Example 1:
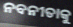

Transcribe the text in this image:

ନବନୀତାକୁ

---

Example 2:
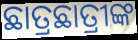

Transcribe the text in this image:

ଛାତ୍ରଛାତ୍ରୀଙ୍କ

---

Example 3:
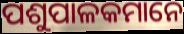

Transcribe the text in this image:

ପଶୁପାଳକମାନେ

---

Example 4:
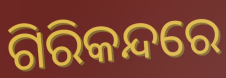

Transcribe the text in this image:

ଗିରିକନ୍ଦରେ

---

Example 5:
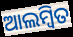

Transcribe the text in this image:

ଆଲମ୍ୱିତ